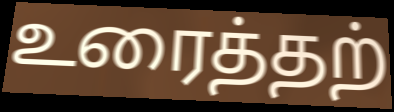
உரைத்தற்